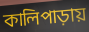
কালিপাড়ায়